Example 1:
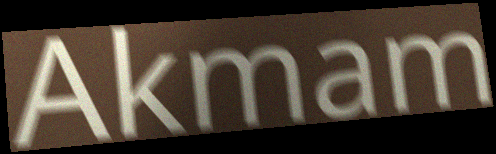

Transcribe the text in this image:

Akmam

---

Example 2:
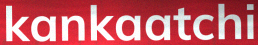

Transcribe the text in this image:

kankaatchi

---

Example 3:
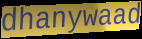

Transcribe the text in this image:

dhanywaad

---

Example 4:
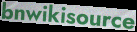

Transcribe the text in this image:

bnwikisource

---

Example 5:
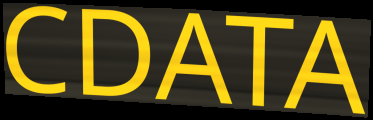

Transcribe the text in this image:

CDATA